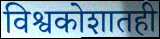
विश्वकोशातही